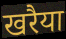
खरैया